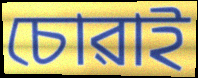
চোৱাই